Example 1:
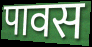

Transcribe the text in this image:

पावस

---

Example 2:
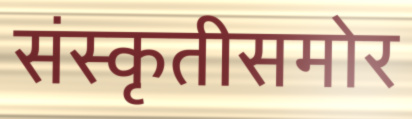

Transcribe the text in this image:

संस्कृतीसमोर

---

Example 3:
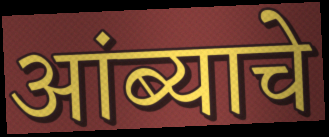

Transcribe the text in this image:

आंब्याचे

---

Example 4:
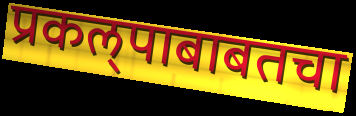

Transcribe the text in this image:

प्रकल्पाबाबतचा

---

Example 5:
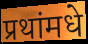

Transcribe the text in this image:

प्रथांमधे